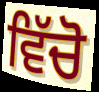
ਵਿੱਚੋ